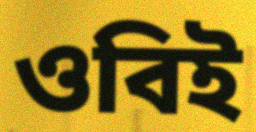
ওবিই